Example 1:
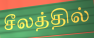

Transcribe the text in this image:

சீலத்தில்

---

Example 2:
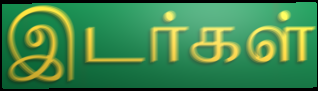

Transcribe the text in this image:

இடர்கள்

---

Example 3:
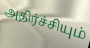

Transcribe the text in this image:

அதிர்ச்சியும்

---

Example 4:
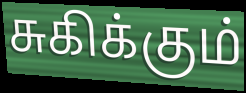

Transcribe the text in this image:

சுகிக்கும்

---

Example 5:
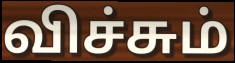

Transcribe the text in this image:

விச்சும்